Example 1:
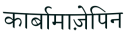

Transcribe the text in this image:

कार्बामाज़ेपिन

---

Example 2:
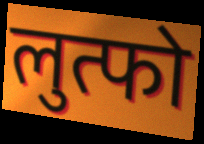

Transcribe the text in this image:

लुत्फो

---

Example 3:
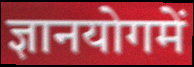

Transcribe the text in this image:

ज्ञानयोगमें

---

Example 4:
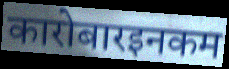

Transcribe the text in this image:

कारोबारइनकम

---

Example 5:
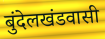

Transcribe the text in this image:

बुंदेलखंडवासी